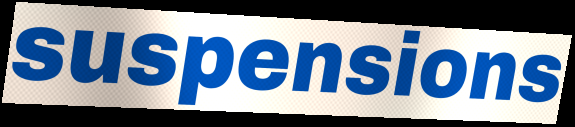
suspensions